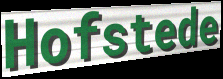
Hofstede